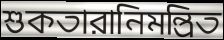
শুকতারানিমন্ত্রিত